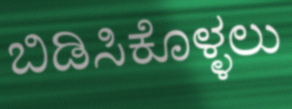
ಬಿಡಿಸಿಕೊಳ್ಳಲು